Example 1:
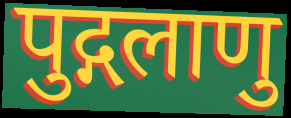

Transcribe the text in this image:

पुद्गलाणु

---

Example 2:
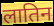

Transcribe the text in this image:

लातिन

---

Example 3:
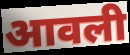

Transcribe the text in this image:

आवली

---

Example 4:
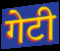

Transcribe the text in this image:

गेटी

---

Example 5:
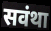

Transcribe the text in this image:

सवंथा